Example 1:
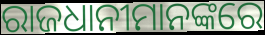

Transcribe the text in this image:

ରାଜଧାନୀମାନଙ୍କରେ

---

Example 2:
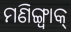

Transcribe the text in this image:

ମଣିଙ୍ଗ୍ୱାକ୍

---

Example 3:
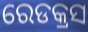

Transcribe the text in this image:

ରେଡକ୍ରସ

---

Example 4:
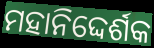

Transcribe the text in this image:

ମହାନିଦ୍ଦେର୍ଶକ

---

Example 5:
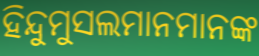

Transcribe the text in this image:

ହିନ୍ଦୁମୁସଲମାନମାନଙ୍କ